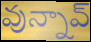
వున్నావ్